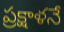
ప్రక్షాళనే